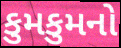
કુમકુમનો